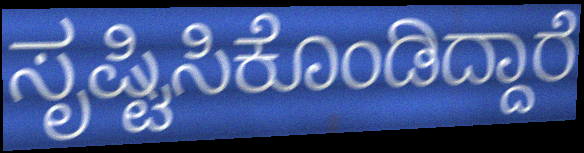
ಸೃಷ್ಟಿಸಿಕೊಂಡಿದ್ದಾರೆ